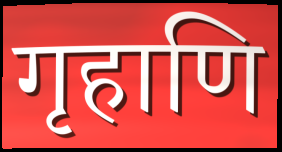
गृहाणि